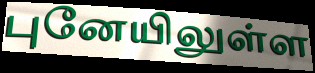
புனேயிலுள்ள